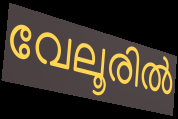
വേലൂരിൽ